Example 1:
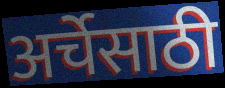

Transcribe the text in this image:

अर्चेसाठी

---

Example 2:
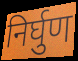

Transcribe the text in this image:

निर्घुण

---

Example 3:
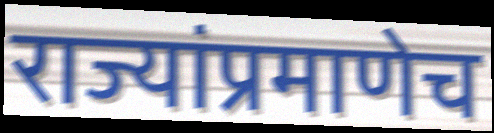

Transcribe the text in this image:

राज्यांप्रमाणेच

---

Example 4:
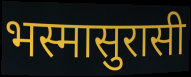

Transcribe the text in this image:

भस्मासुरासी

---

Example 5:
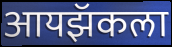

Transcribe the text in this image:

आयझॅकला